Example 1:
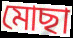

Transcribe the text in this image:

মোছা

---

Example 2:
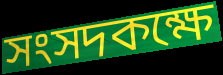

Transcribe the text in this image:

সংসদকক্ষে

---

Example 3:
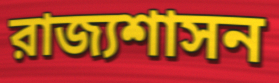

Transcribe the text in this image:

রাজ্যশাসন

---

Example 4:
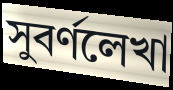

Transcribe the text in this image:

সুবর্ণলেখা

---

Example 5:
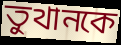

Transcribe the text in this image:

তুথানকে